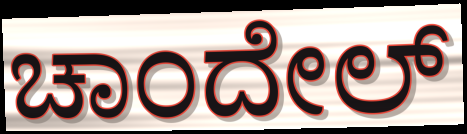
ಚಾಂದೇಲ್